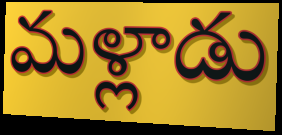
మళ్లాడు